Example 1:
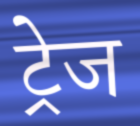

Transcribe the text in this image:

ट्रेज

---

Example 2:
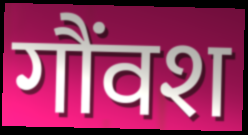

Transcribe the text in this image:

गौंवश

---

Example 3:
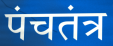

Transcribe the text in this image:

पंचतंत्र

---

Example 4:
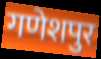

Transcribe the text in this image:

गणेशपुर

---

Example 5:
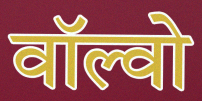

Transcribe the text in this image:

वॉल्‍वो